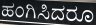
ಹಂಗಿಸಿದರೂ